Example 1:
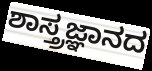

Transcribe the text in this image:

ಶಾಸ್ತ್ರಜ್ಞಾನದ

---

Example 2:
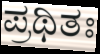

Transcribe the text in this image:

ಪ್ರಥಿತಃ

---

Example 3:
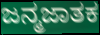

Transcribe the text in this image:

ಜನ್ಮಜಾತಕ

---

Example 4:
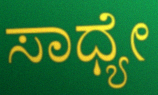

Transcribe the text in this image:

ಸಾಧ್ಯೇ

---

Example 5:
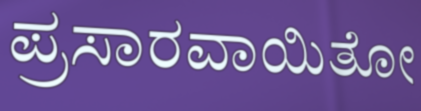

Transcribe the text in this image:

ಪ್ರಸಾರವಾಯಿತೋ